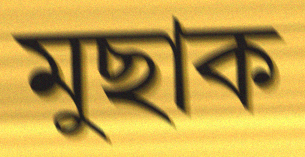
মুছাক